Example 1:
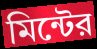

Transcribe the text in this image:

মিন্টের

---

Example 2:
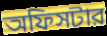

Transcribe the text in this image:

অফিসটার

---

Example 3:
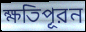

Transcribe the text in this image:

ক্ষতিপূরন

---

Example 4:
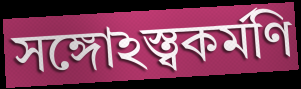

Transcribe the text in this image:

সঙ্গোঽস্ত্বকর্মণি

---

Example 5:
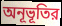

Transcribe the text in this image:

অনূভূতির